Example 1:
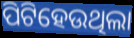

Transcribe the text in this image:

ପିଟିହେଉଥିଲା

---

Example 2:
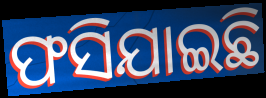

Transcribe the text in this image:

ଫସିଯାଇଛି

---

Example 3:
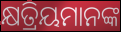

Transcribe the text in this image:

କ୍ଷତ୍ରିୟମାନଙ୍କ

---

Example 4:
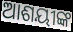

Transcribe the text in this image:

ଆଶୟୀଙ୍କ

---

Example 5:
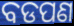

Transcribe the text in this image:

ବଡପଣ